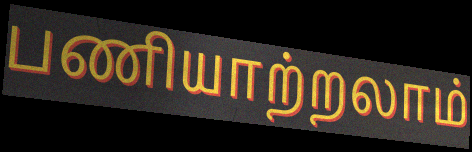
பணியாற்றலாம்